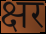
क्षर